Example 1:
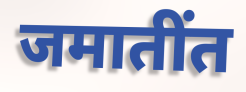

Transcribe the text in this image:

जमातींत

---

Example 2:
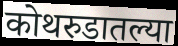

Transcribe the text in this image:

कोथरुडातल्या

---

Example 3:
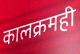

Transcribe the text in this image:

कालक्रमही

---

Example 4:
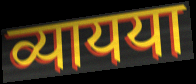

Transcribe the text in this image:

व्यायया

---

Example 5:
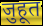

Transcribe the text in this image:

जुहूत